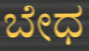
ಬೇಧ